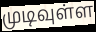
முடிவுள்ள